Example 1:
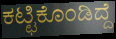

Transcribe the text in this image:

ಕಟ್ಟಿಕೊಂಡಿದ್ದೆ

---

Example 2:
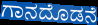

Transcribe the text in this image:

ಗಾನದೊಡನೆ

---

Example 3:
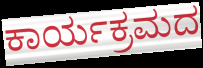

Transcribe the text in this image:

ಕಾರ್ಯಕ್ರಮದ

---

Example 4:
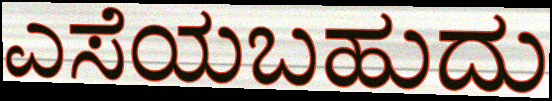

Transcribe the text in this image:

ಎಸೆಯಬಹುದು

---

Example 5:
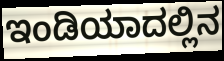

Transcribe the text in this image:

ಇಂಡಿಯಾದಲ್ಲಿನ